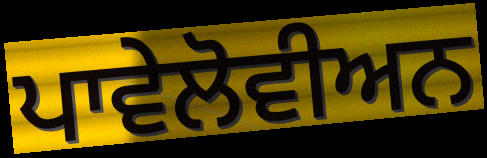
ਪਾਵੇਲੋਵੀਅਨ